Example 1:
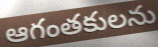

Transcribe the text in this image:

ఆగంతకులను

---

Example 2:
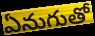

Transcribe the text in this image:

ఏనుగుతో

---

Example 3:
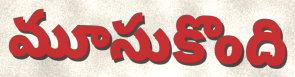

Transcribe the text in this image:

మూసుకొంది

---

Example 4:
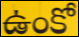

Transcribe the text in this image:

ఉంకో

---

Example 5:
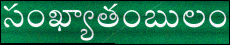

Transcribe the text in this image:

సంఖ్యాతంబులం